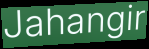
Jahangir